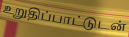
உறுதிப்பாட்டுடன்